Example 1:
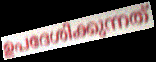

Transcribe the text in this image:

ഉപദേശിക്കുന്നത്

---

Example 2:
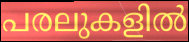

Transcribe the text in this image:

പരലുകളിൽ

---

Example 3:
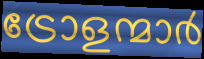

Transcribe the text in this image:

ട്രോളന്മാർ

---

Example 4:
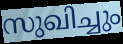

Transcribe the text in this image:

സുഖിച്ചും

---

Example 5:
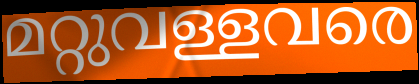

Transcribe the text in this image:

മറ്റുവള്ളവരെ